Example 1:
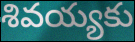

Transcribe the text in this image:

శివయ్యకు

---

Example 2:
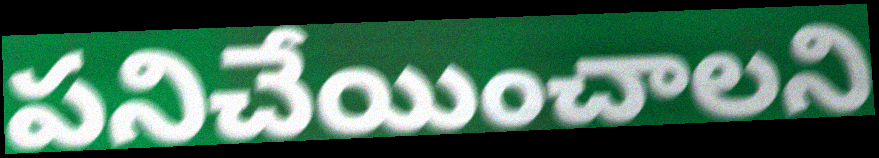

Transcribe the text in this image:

పనిచేయించాలని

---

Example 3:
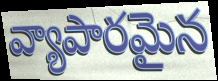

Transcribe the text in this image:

వ్యాపారమైన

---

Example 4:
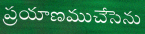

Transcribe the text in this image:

ప్రయాణముచేసెను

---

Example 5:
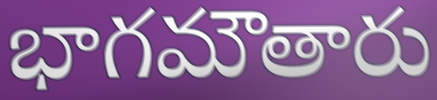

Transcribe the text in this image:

భాగమౌతారు